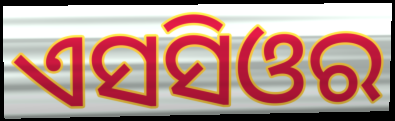
ଏସସିଓର